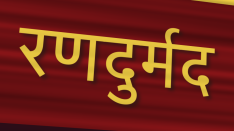
रणदुर्मद